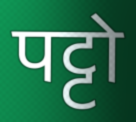
पट्टो